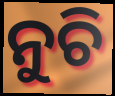
ନୁଚି